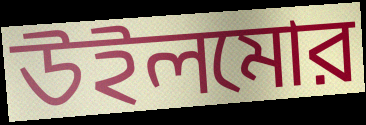
উইলমোর